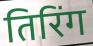
तिरिंग